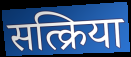
सत्क्रिया